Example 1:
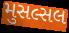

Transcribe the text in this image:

મુસલ્સલ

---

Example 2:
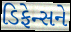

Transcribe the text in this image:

ડિફેન્સને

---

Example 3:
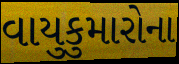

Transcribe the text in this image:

વાયુકુમારોના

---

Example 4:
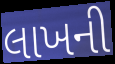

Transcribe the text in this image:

લાખની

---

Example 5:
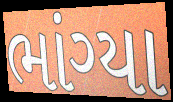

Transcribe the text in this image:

ભાંગ્યા